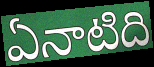
ఏనాటిది